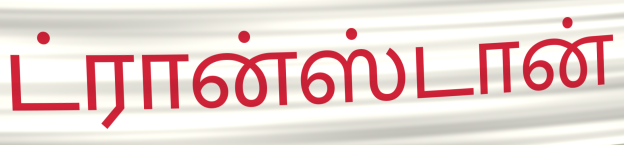
ட்ரான்ஸ்டான்